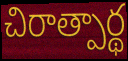
చిరాత్పార్థ